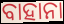
ବାହାନା